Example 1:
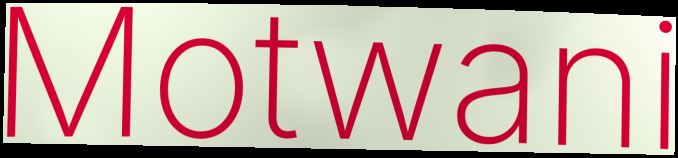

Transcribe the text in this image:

Motwani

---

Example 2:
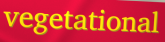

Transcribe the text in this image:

vegetational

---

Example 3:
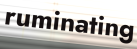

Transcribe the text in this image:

ruminating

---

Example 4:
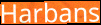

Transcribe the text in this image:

Harbans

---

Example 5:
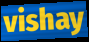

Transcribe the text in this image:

vishay